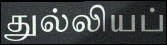
துல்லியப்